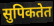
सुपिकतेत